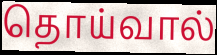
தொய்வால்